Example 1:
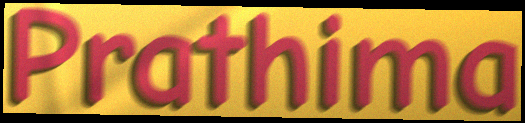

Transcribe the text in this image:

Prathima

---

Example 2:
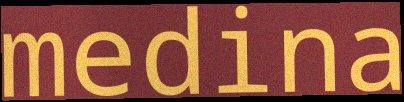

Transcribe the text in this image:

medina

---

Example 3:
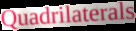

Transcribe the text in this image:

Quadrilaterals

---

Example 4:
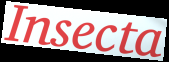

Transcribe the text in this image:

Insecta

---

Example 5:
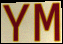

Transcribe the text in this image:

YM